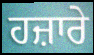
ਹਜ਼ਾਰੇ